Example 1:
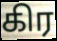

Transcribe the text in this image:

கிர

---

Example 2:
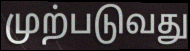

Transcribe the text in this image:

முற்படுவது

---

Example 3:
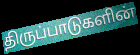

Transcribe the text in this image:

திருப்பாடுகளின்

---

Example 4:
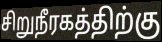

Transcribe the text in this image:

சிறுநீரகத்திற்கு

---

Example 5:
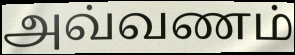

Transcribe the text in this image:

அவ்வணம்